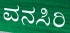
ವನಸಿರಿ